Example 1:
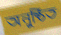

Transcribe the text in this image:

অনুষ্ঠিত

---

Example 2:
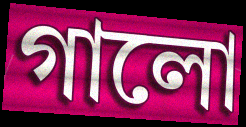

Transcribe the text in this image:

গালো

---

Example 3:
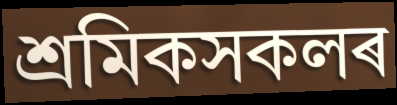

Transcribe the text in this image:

শ্ৰমিকসকলৰ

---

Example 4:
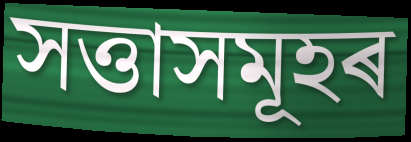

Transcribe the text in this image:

সত্তাসমূহৰ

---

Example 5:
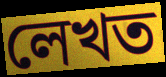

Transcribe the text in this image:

লেখত